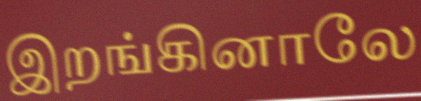
இறங்கினாலே